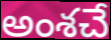
అంశచే